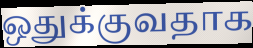
ஒதுக்குவதாக